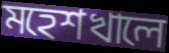
মহেশখালে